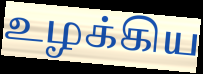
உழக்கிய